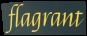
flagrant